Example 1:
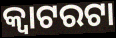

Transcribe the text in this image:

କ୍ଵାଟରଟା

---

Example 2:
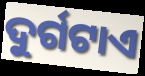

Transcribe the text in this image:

ଦୁର୍ଗଟାଏ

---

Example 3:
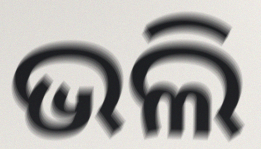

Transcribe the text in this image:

ଭଲି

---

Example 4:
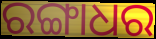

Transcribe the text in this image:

ରଙ୍ଗାଧର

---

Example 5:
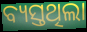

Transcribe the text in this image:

ବ୍ୟସ୍ତଥିଲା